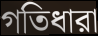
গতিধারা